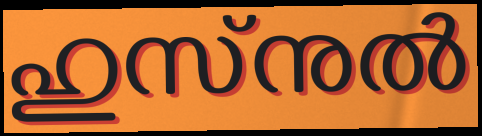
ഹുസ്നുൽ